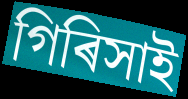
গিৰিসাই